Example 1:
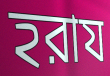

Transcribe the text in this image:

হরায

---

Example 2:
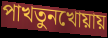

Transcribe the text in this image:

পাখতুনখোয়ায়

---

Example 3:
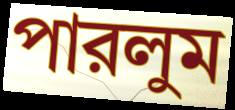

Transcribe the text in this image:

পারলুম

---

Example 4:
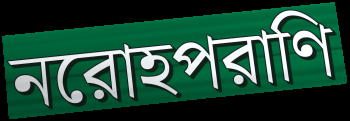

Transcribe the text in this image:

নরোহপরাণি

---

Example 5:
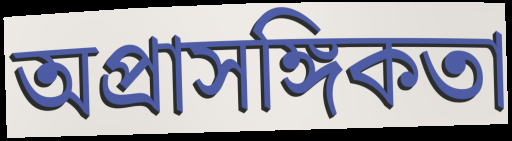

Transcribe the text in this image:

অপ্রাসঙ্গিকতা